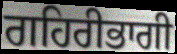
ਗਹਿਰੀਭਾਗੀ